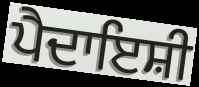
ਪੈਦਾਇਸ਼ੀ